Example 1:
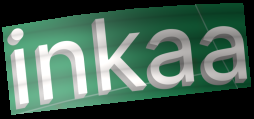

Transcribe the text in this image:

inkaa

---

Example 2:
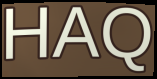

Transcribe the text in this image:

HAQ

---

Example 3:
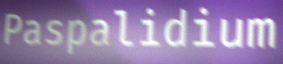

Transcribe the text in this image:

Paspalidium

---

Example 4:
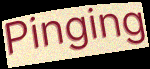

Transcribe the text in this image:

Pinging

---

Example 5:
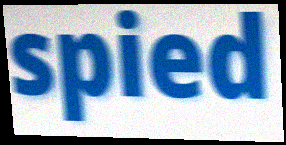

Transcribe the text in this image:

spied